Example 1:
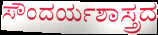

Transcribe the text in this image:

ಸೌಂದರ್ಯಶಾಸ್ತ್ರದ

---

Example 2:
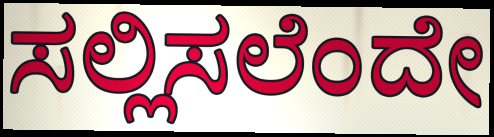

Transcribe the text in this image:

ಸಲ್ಲಿಸಲೆಂದೇ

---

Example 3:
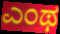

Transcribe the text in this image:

ಎಂಥ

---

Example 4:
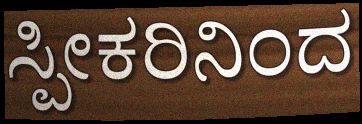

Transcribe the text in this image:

ಸ್ಪೀಕರಿನಿಂದ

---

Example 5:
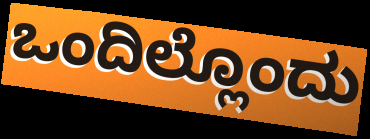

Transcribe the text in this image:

ಒಂದಿಲ್ಲೊಂದು